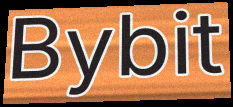
Bybit